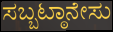
ಸಬ್ಬಟ್ಠಾನೇಸು